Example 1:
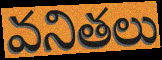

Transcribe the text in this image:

వనితలు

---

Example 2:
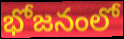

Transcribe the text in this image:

భోజనంలో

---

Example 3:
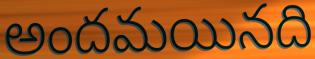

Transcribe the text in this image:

అందమయినది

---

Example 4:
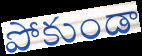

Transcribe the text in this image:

పోకుండా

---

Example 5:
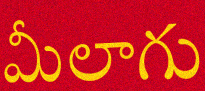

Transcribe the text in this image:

మీలాగు